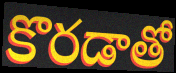
కొరడాతో